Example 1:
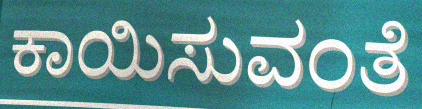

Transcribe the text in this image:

ಕಾಯಿಸುವಂತೆ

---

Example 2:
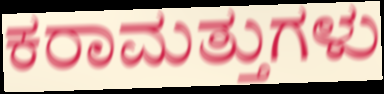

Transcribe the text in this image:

ಕರಾಮತ್ತುಗಳು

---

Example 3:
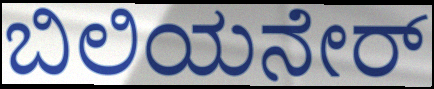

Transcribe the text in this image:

ಬಿಲಿಯನೇರ್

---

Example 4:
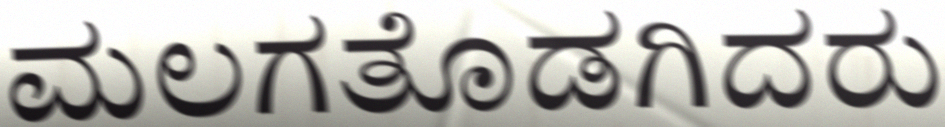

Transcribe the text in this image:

ಮಲಗತೊಡಗಿದರು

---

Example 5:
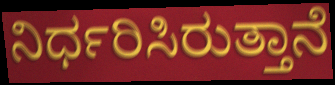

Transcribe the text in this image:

ನಿರ್ಧರಿಸಿರುತ್ತಾನೆ